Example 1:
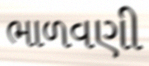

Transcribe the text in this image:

ભાળવણી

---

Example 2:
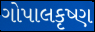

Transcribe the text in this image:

ગોપાલકૃષ્ણ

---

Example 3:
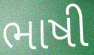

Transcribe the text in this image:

ભાષી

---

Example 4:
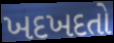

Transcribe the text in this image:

ખદખદતો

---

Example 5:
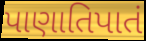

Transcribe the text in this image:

પાણાતિપાતં